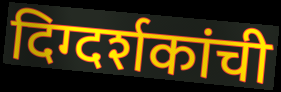
दिग्दर्शकांची